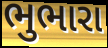
ભુભારા